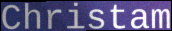
Christam